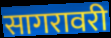
सागरावरी